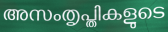
അസംതൃപ്തികളുടെ